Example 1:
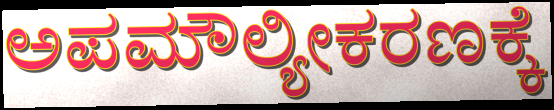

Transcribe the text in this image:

ಅಪಮೌಲ್ಯೀಕರಣಕ್ಕೆ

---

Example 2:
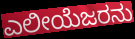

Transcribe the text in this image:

ಎಲೀಯೆಜರನು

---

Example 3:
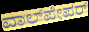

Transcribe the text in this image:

ವಾಲ್‌ಪೇಪರ್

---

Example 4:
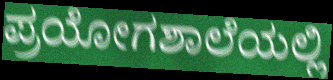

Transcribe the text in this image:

ಪ್ರಯೋಗಶಾಲೆಯಲ್ಲಿ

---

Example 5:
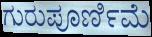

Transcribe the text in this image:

ಗುರುಪೂರ್ಣಿಮೆ